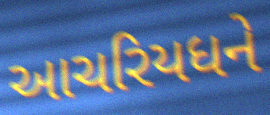
આચરિયધને